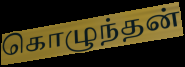
கொழுந்தன்